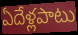
ఏదేళ్లపాటు